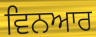
ਵਿਨਆਰ